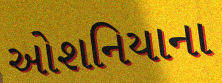
ઓશનિયાના